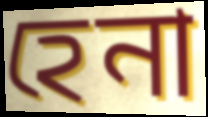
হেনা